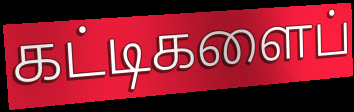
கட்டிகளைப்